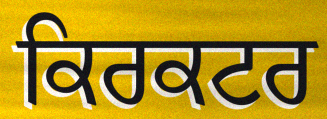
ਕਿਰਕਟਰ